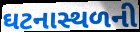
ઘટનાસ્થળની